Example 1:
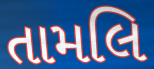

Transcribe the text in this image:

તામલિ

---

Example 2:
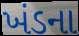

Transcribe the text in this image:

ખંડના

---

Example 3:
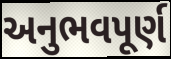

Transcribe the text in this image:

અનુભવપૂર્ણ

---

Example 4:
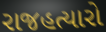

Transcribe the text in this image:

રાજહત્યારો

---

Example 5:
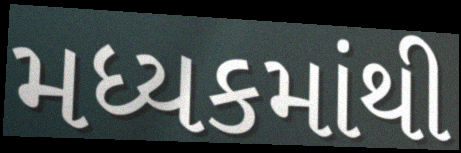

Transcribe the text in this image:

મધ્યકમાંથી